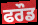
ਫਰੌਡ